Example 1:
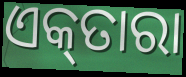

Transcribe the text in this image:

ଏକ୍‌ତାରା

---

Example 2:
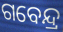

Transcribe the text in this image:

ଗବେନ୍ଦ୍ର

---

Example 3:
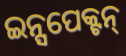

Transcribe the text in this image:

ଇନ୍ସପେକ୍ଟନ୍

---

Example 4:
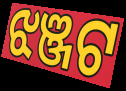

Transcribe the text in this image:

ଝଞ୍ଜଟ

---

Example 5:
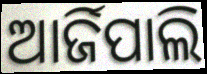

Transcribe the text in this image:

ଆର୍ଜିପାଲି